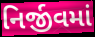
નિર્જીવમાં